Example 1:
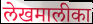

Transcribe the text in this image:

लेखमालीका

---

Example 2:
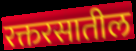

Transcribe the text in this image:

रक्तरसातील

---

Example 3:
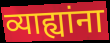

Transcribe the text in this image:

व्याह्यांना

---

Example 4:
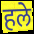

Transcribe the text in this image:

हले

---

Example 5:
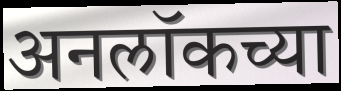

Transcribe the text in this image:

अनलॉकच्या